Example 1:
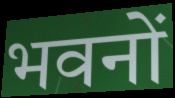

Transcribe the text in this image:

भवनों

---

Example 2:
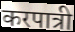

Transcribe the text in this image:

करपात्री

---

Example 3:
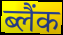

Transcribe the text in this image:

ब्लैंक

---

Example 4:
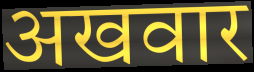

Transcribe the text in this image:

अखवार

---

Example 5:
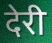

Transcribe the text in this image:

देरी